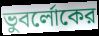
ভুবর্লোকের